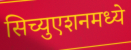
सिच्युएशनमध्ये